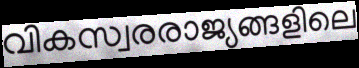
വികസ്വരരാജ്യങ്ങളിലെ